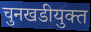
चुनखडीयुक्त